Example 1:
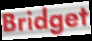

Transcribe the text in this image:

Bridget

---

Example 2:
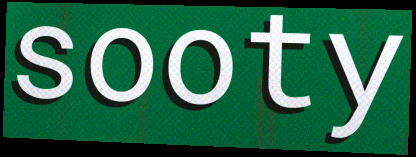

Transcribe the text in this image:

sooty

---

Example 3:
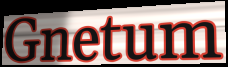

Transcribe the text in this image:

Gnetum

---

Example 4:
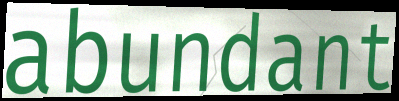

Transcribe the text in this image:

abundant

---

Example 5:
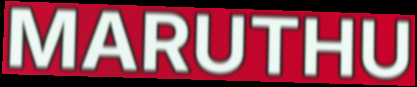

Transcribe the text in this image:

MARUTHU